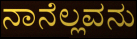
ನಾನೆಲ್ಲವನು